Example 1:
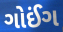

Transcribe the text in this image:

ગોઈંગ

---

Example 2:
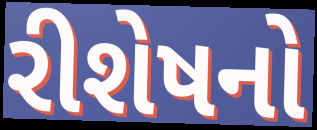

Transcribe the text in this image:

રીશેષનો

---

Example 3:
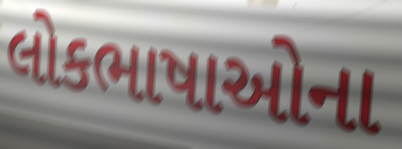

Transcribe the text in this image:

લોકભાષાઓના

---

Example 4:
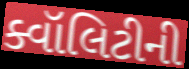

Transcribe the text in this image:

ક્વૉલિટીની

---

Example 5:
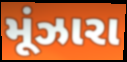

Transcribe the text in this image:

મૂંઝારા